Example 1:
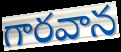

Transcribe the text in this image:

గారవాన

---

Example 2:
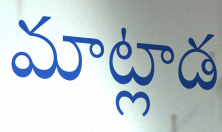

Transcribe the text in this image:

మాట్లాడ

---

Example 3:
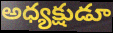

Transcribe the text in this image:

అధ్యక్షుడూ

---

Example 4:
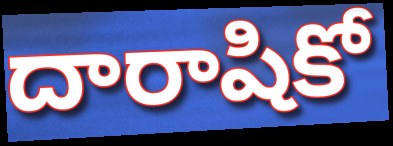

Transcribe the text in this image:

దారాషికో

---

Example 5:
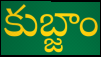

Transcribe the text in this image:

కుబ్జాం